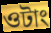
ওটাং